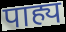
पाह्य